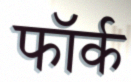
फॉर्क